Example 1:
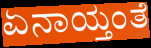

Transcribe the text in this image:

ಏನಾಯ್ತಂತೆ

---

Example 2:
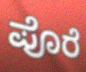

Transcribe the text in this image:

ಪೊರೆ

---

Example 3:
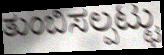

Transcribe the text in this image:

ತುಂಬಿಸಲ್ಪಟ್ಟು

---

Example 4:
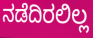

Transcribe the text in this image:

ನಡೆದಿರಲಿಲ್ಲ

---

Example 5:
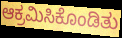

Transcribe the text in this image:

ಆಕ್ರಮಿಸಿಕೊಂಡಿತು